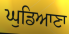
ਘੁਡਿਆਣਾ